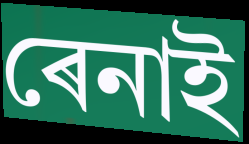
ৰেনাই